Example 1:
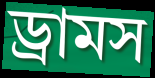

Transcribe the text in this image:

ড্রামস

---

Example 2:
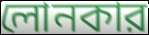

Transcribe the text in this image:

লোনকার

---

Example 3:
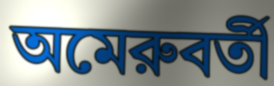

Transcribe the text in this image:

অমেরুবর্তী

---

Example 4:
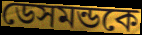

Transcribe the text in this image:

ডেসমন্ডকে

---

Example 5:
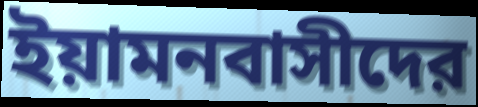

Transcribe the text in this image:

ইয়ামনবাসীদের